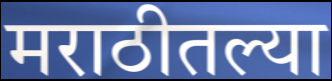
मराठीतल्या